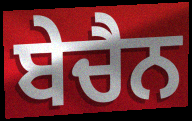
ਬੇਚੈਨ